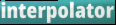
interpolator